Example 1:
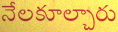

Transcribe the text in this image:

నేలకూల్చారు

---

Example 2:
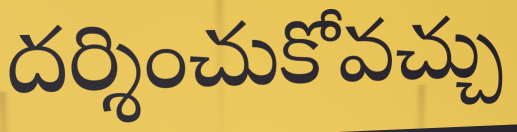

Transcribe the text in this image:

దర్శించుకోవచ్చు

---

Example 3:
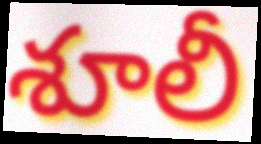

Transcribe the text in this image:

శూలీ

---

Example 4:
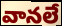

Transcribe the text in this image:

వానలే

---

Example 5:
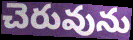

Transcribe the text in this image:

చెరువును